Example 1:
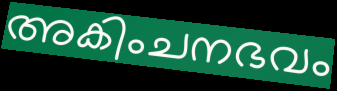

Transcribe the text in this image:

അകിംചനഭവം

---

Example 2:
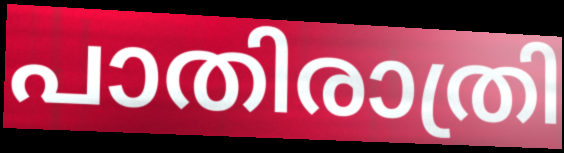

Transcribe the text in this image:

പാതിരാത്രി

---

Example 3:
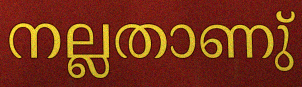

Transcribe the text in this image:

നല്ലതാണു്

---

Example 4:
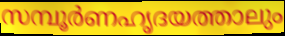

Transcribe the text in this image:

സമ്പൂർണഹൃദയത്താലും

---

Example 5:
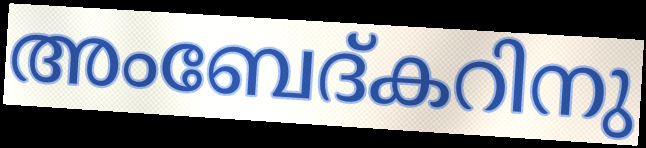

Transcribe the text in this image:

അംബേദ്കറിനു